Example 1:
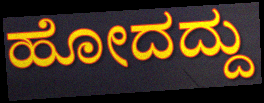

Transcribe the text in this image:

ಹೋದದ್ದು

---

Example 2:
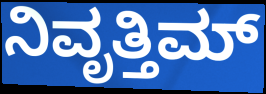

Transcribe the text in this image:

ನಿವೃತ್ತಿಮ್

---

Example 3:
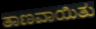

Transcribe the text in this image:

ತಾಣವಾಯಿತು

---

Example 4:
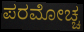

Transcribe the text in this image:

ಪರಮೋಚ್ಚ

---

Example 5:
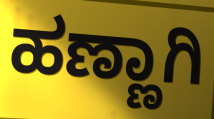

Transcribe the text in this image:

ಹಣ್ಣಾಗಿ